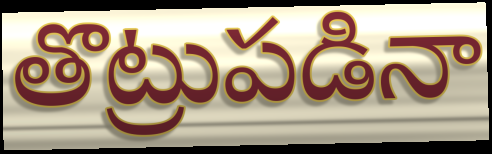
తొట్రుపడినా